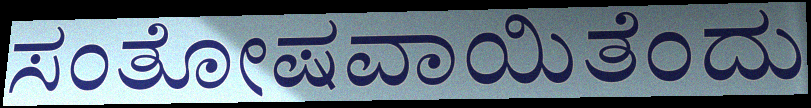
ಸಂತೋಷವಾಯಿತೆಂದು